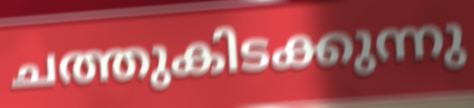
ചത്തുകിടക്കുന്നു